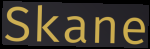
Skane